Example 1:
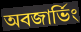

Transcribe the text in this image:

অবজার্ভিং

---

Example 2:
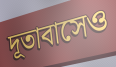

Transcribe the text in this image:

দূতাবাসেও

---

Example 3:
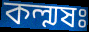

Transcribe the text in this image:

কল্মষঃ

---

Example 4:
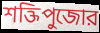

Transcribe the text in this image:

শক্তিপুজোর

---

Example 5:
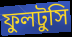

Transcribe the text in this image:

ফুলটুসি